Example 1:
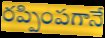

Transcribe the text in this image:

రప్పింపగానే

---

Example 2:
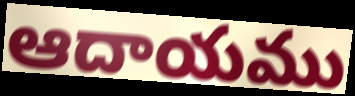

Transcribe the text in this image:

ఆదాయము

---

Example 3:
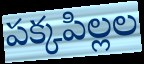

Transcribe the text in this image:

పక్కపిల్లల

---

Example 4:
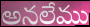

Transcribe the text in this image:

అనలేము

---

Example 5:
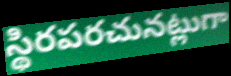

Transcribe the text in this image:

స్థిరపరచునట్లుగా